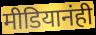
मीडियानंही